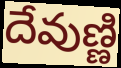
దేవుణ్ణి